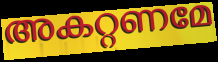
അകറ്റണമേ